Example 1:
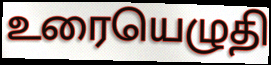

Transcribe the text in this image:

உரையெழுதி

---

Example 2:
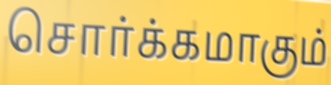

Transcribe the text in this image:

சொர்க்கமாகும்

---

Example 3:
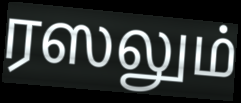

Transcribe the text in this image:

ரஸலும்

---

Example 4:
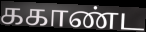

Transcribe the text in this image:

ககாண்ட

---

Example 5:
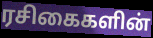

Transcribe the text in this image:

ரசிகைகளின்